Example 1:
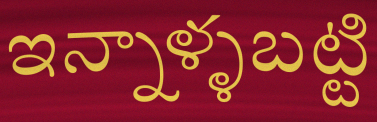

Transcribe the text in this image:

ఇన్నాళ్ళబట్టి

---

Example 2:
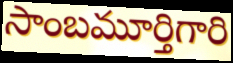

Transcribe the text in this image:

సాంబమూర్తిగారి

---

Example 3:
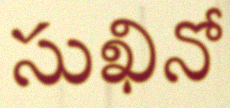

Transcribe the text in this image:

సుఖినో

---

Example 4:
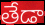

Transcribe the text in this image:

తేడా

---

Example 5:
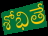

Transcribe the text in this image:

శోభితే